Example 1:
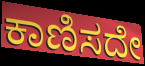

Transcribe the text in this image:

ಕಾಣಿಸದೇ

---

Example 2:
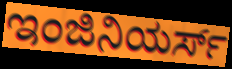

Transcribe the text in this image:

ಇಂಜಿನಿಯರ್ಸ್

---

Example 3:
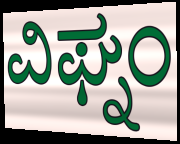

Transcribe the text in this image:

ವಿಘ್ನಂ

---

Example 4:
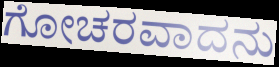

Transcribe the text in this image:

ಗೋಚರವಾದನು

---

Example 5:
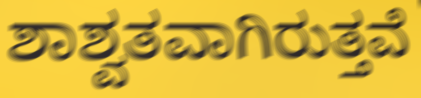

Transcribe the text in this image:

ಶಾಶ್ವತವಾಗಿರುತ್ತವೆ